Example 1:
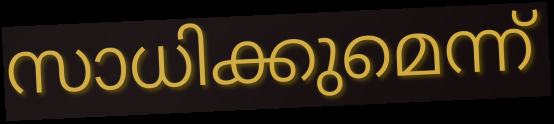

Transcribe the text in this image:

സാധിക്കുമെന്ന്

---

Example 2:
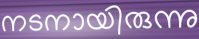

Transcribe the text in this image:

നടനായിരുന്നു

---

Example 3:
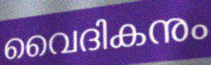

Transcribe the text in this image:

വൈദികനും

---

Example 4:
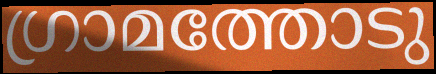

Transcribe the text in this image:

ഗ്രാമത്തോടു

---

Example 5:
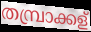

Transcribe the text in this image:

തമ്പ്രാക്കള്